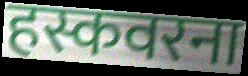
हस्कवरना